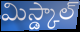
మిస్డ్కాల్